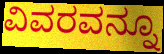
ವಿವರವನ್ನೂ